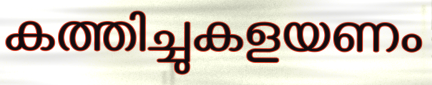
കത്തിച്ചുകളയണം